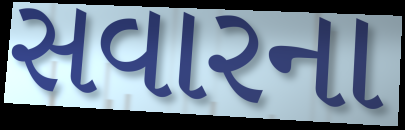
સવારના